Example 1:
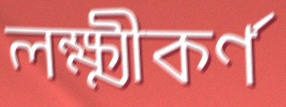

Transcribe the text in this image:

লক্ষ্মীকর্ণ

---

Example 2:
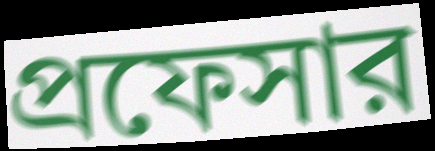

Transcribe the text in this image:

প্রফেসার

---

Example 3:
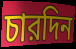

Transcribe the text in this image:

চারদিন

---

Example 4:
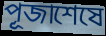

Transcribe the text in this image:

পূজাশেষে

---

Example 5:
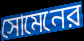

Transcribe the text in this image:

সোমেনের